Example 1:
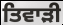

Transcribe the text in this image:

ਤਿਵਾੜੀ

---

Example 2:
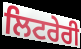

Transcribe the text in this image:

ਲਿਟਰੇਰੀ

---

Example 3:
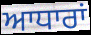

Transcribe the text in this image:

ਆਧਾਰਾਂ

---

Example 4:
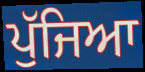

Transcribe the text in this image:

ਪੁੱਜਿਆ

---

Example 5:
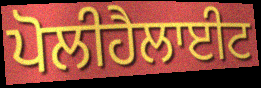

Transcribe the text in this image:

ਪੋਲੀਹੈਲਾਈਟ